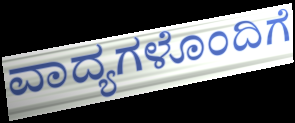
ವಾದ್ಯಗಳೊಂದಿಗೆ